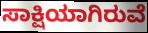
ಸಾಕ್ಷಿಯಾಗಿರುವೆ